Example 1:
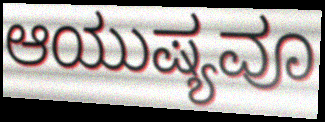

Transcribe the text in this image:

ಆಯುಷ್ಯವೂ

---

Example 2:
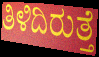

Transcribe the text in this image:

ತಿಳಿದಿರುತ್ತೆ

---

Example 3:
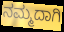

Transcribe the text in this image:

ನಮ್ಮದಾಗಿ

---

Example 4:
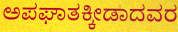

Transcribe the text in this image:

ಅಪಘಾತಕ್ಕೀಡಾದವರ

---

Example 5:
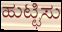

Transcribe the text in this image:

ಹುಟ್ಟಿಸು